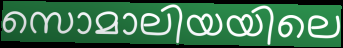
സൊമാലിയയിലെ